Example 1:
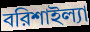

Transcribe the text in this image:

বরিশাইল্যা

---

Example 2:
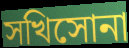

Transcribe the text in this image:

সখিসোনা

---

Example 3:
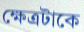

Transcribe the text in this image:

ক্ষেত্রটাকে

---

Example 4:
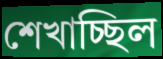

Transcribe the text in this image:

শেখাচ্ছিল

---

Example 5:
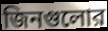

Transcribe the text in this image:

জিনগুলোর